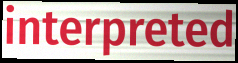
interpreted